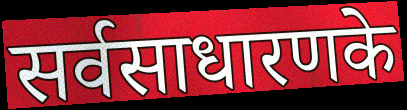
सर्वसाधारणके